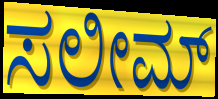
ಸಲೀಮ್